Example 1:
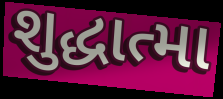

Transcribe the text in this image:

શુદ્ધાત્મા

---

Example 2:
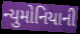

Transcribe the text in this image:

ન્યુમોનિયાની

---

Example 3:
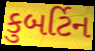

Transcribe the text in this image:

કુબર્ટિન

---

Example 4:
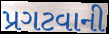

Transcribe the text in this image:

પ્રગટવાની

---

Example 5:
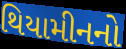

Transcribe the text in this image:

થિયામીનનો